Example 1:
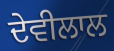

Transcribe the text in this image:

ਦੇਵੀਲਾਲ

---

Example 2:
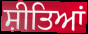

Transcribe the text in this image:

ਸ਼ੀਤਿਆਂ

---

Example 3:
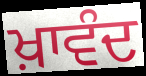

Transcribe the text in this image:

ਖ਼ਾਵੰਦ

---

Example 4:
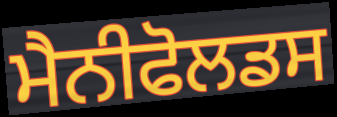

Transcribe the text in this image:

ਮੈਨੀਫੋਲਡਸ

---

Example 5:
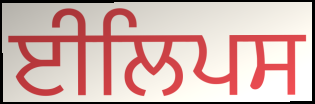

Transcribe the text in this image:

ਈਲਿਪਸ